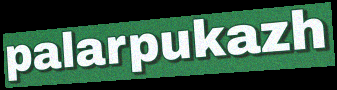
palarpukazh